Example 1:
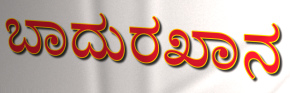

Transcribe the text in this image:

ಬಾದುರಖಾನ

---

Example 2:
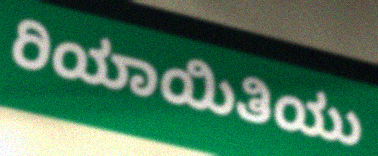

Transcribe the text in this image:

ರಿಯಾಯಿತಿಯು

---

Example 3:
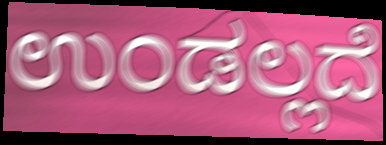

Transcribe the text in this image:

ಉಂಡಲ್ಲದೆ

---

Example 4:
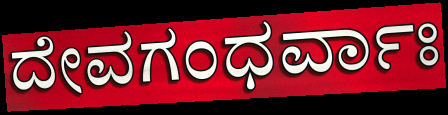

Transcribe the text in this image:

ದೇವಗಂಧರ್ವಾಃ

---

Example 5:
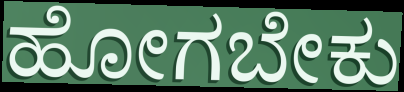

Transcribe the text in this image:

ಹೋಗಬೇಕು